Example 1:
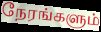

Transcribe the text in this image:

நேரங்களும்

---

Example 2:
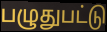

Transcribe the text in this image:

பழுதுபட்டு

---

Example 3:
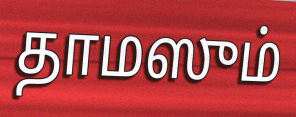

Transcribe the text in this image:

தாமஸும்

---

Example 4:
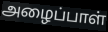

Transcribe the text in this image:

அழைப்பாள்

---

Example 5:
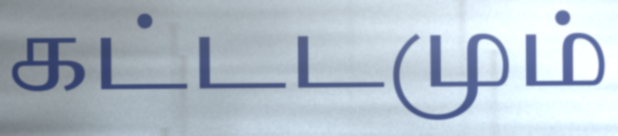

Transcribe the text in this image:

கட்டடமும்